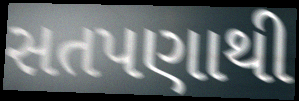
સતપણાથી